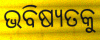
ଭବିଷ୍ୟତକୁ